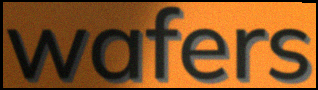
wafers